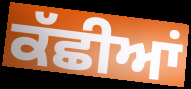
ਕੱਛੀਆਂ